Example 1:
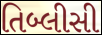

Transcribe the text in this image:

તિબ્લીસી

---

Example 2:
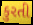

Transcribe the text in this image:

કુરતી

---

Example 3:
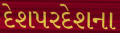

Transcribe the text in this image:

દેશપરદેશના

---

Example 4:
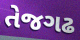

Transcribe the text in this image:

તેજગઢ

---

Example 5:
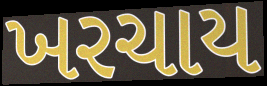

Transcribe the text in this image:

ખરચાય